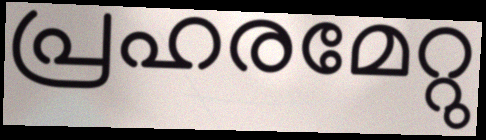
പ്രഹരമേറ്റു